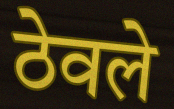
ठेवले